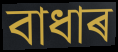
বাধাৰ